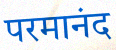
परमानंद